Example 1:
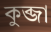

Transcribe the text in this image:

কুব্জা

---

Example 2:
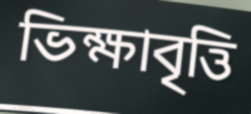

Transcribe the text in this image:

ভিক্ষাবৃত্তি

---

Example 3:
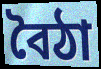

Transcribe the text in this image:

বৈঠা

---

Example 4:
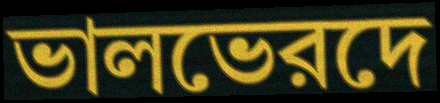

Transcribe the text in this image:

ভালভেরদে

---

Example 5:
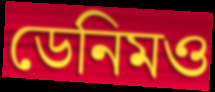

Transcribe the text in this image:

ডেনিমও